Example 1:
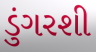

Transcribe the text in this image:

ડુંગરશી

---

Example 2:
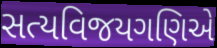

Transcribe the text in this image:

સત્યવિજયગણિએ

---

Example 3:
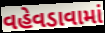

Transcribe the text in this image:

વહેવડાવામાં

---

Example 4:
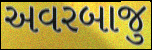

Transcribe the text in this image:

અવરબાજુ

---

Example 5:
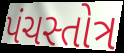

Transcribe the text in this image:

પંચસ્તોત્ર